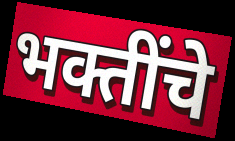
भक्तींचे